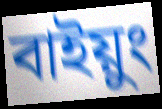
বাইয়ুং